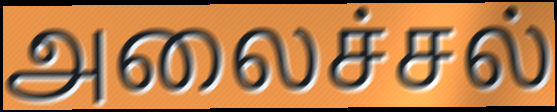
அலைச்சல்